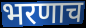
भरणाच